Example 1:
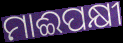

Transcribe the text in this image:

ମାଈପକ୍ଷୀ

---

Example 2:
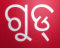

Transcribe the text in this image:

ଗୁଡ୍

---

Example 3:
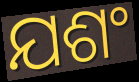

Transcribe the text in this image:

ଯଶଂ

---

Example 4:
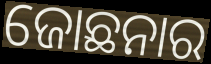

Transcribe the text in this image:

ଜୋଛନାର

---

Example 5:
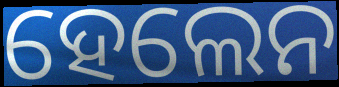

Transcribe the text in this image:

ହେଲେନ